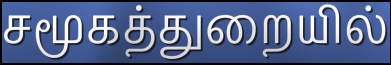
சமூகத்துறையில்